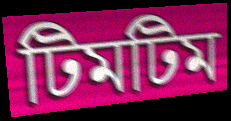
টিমটিম